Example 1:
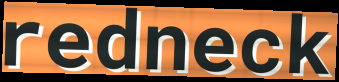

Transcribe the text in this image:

redneck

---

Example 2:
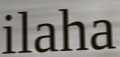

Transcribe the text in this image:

ilaha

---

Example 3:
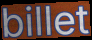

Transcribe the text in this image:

billet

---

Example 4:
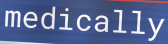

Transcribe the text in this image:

medically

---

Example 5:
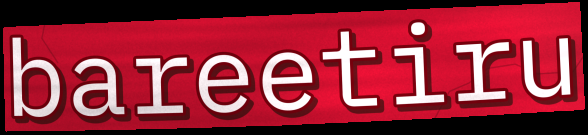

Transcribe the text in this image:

bareetiru